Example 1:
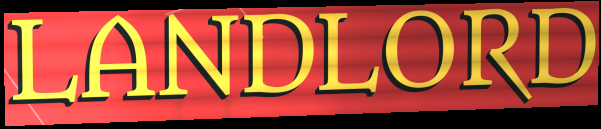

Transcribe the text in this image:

LANDLORD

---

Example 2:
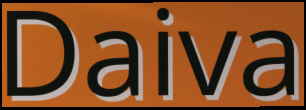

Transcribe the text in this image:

Daiva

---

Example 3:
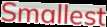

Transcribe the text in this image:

Smallest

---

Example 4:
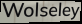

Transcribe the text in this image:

Wolseley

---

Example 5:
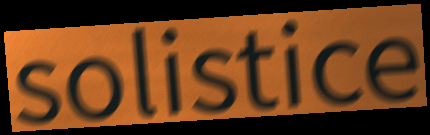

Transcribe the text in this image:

solistice